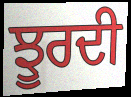
ਝੂਰਦੀ